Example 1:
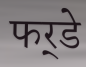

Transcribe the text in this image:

फर्डे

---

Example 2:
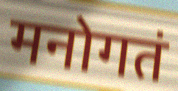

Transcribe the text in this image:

मनोगतं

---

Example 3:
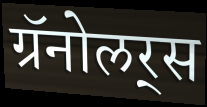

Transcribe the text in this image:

ग्रॅनोलर्स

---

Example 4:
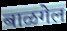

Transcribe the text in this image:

बाळगेल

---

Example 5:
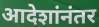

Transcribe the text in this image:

आदेशांनंतर